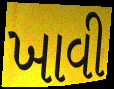
ખાવી